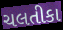
ચલતીકા